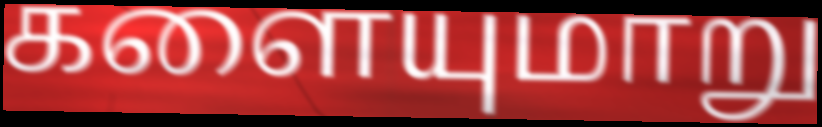
களையுமாறு